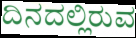
ದಿನದಲ್ಲಿರುವ